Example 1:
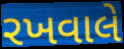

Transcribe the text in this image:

રખવાલે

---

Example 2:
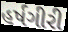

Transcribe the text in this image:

હર્ષગીરી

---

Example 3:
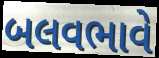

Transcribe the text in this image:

બલવભાવે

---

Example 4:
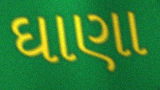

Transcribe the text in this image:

ઘાણા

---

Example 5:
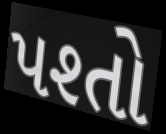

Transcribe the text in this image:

પશ્તો